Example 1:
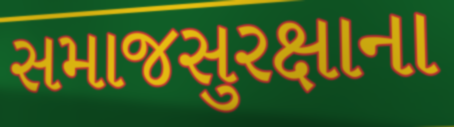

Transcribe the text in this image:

સમાજસુરક્ષાના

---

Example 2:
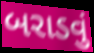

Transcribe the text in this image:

બરાડવું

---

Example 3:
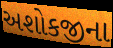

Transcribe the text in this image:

અશોકજીના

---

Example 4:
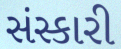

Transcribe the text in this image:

સંસ્કારી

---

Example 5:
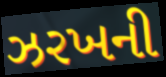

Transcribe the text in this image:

ઝરખની